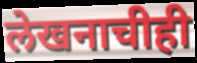
लेखनाचीही